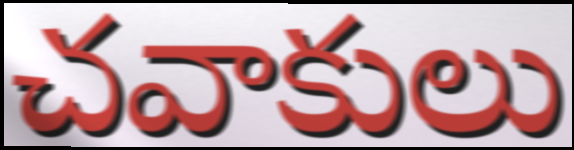
చవాకులు